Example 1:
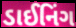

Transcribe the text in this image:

ડાઈનિંગ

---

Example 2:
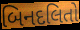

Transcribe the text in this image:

બિનદલિતો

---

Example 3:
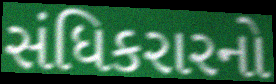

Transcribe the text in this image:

સંધિકરારનો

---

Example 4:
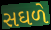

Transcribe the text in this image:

સઘળે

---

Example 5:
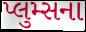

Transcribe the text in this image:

પ્લુમ્સના